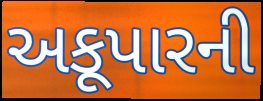
અકૂપારની